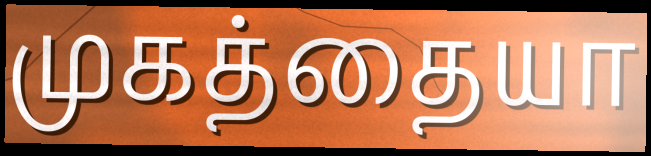
முகத்தையா